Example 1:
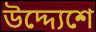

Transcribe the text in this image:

উদ্দ্যেশে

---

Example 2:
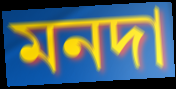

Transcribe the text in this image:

মনদা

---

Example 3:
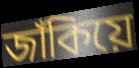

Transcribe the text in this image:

জাঁকিয়ে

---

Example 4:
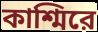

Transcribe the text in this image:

কাশ্মিরে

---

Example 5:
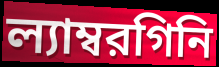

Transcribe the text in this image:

ল্যাম্বরগিনি